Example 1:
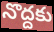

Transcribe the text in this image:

నొద్దకు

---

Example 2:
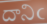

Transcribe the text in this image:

దానిఁ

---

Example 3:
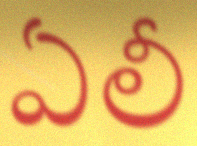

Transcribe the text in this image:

ఏలీ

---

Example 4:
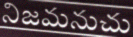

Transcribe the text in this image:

నిజమనుచు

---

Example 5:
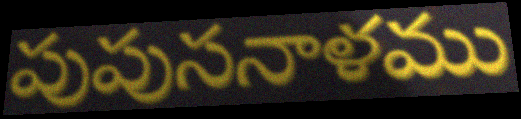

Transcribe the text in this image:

పుపుసనాళము